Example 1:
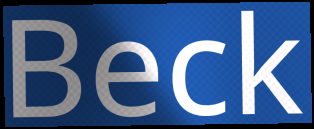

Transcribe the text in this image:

Beck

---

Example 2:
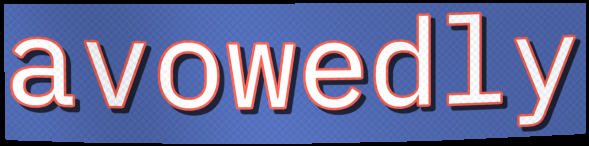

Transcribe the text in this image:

avowedly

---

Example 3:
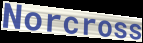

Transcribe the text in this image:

Norcross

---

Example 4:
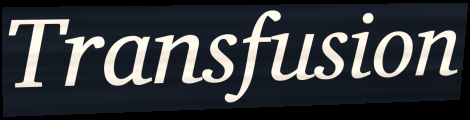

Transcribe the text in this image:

Transfusion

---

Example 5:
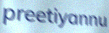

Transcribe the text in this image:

preetiyannu